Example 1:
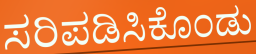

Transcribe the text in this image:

ಸರಿಪಡಿಸಿಕೊಂಡು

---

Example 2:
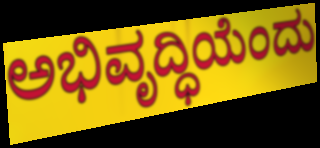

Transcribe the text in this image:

ಅಭಿವೃದ್ಧಿಯೆಂದು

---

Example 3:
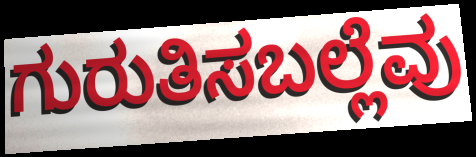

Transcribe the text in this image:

ಗುರುತಿಸಬಲ್ಲೆವು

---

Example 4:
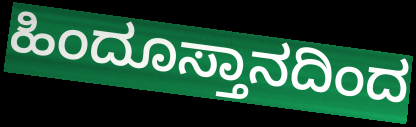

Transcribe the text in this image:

ಹಿಂದೂಸ್ತಾನದಿಂದ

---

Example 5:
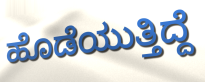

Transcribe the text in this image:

ಹೊಡೆಯುತ್ತಿದ್ದೆ